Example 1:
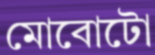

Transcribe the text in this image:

মোবোটো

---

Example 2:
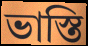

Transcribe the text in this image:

ভাস্তি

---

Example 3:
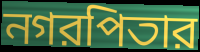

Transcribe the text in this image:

নগরপিতার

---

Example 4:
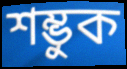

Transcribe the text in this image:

শম্ভুক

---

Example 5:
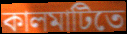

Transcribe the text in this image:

কালমাটিতে